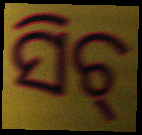
ସିଚ୍